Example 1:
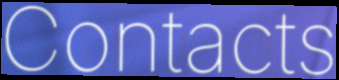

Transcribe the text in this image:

Contacts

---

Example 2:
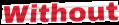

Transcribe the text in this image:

Without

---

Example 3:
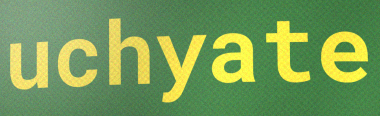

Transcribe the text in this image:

uchyate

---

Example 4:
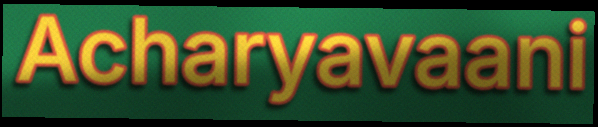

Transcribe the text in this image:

Acharyavaani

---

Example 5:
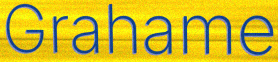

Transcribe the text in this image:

Grahame